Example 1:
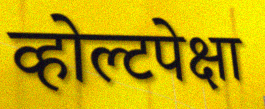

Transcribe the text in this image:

व्होल्टपेक्षा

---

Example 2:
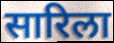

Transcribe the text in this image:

सारिला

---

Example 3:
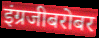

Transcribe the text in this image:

इंग्रजीबरोबर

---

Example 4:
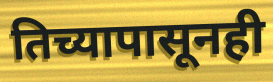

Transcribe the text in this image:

तिच्यापासूनही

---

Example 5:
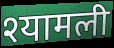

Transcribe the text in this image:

श्यामली